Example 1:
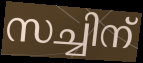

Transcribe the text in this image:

സച്ചിന്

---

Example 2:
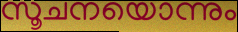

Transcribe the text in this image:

സൂചനയൊന്നും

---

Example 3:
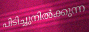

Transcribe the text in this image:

പിടിച്ചുനിൽക്കുന്ന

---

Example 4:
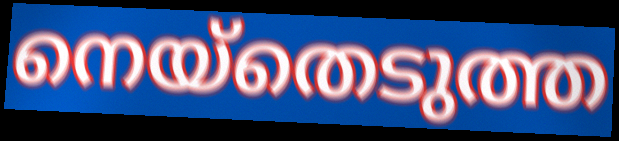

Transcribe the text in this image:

നെയ്തെടുത്ത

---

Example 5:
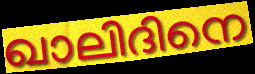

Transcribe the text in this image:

ഖാലിദിനെ